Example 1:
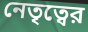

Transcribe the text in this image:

নেতৃত্বের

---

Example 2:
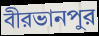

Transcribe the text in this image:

বীরভানপুর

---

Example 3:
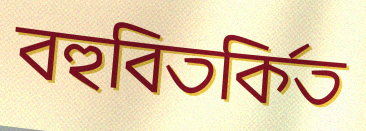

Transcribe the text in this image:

বহুবিতর্কিত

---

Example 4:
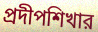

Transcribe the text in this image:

প্রদীপশিখার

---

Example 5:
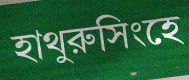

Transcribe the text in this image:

হাথুরুসিংহে